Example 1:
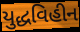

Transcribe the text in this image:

યુદ્ધવિહીન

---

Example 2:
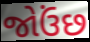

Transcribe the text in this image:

જોઉંછ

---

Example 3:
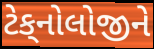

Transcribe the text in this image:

ટેક્‌નોલોજીને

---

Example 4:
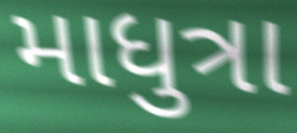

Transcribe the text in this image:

માધુત્રા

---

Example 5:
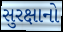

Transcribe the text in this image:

સુરક્ષાનો